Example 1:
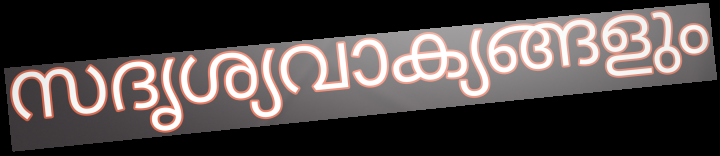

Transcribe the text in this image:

സദൃശ്യവാക്യങ്ങളും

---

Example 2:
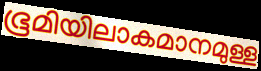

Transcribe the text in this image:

ഭൂമിയിലാകമാനമുള്ള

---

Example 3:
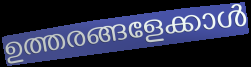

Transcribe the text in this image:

ഉത്തരങ്ങളേക്കാൾ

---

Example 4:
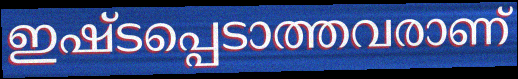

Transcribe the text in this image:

ഇഷ്ടപ്പെടാത്തവരാണ്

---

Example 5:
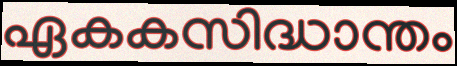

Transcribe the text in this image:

ഏകകസിദ്ധാന്തം